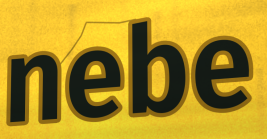
nebe